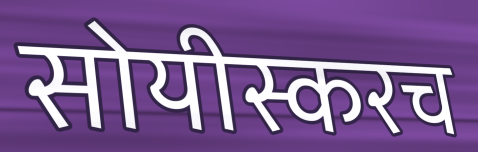
सोयीस्करच